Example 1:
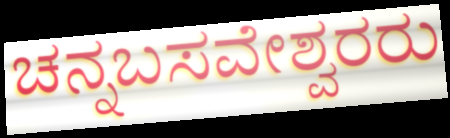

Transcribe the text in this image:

ಚನ್ನಬಸವೇಶ್ವರರು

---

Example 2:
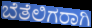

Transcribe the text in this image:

ಬೆತೆಲಿಗರಾಗಿ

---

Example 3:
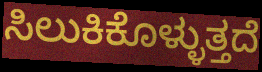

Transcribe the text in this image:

ಸಿಲುಕಿಕೊಳ್ಳುತ್ತದೆ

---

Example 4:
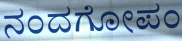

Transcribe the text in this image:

ನಂದಗೋಪಂ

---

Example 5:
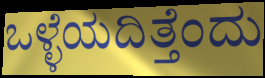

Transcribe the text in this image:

ಒಳ್ಳೆಯದಿತ್ತೆಂದು